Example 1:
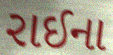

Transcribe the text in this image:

રાઈના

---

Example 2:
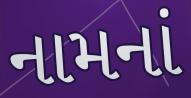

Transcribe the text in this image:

નામનાં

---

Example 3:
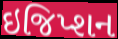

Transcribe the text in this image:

ઇજિપ્શન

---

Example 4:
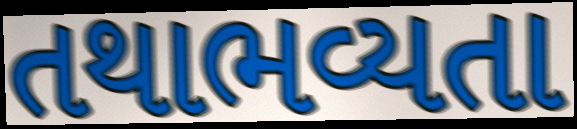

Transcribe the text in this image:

તથાભવ્યતા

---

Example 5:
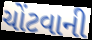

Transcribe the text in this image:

ચોંટવાની